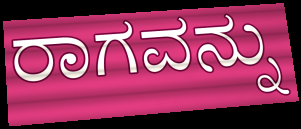
ರಾಗವನ್ನು